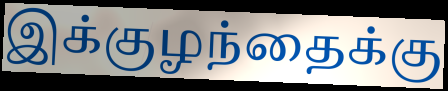
இக்குழந்தைக்கு